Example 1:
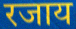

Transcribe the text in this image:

रजाय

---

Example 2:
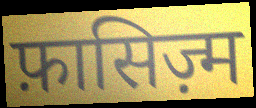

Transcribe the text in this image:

फ़ासिज़्म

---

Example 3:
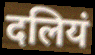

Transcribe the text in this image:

दलियं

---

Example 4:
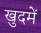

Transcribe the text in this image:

खुदमें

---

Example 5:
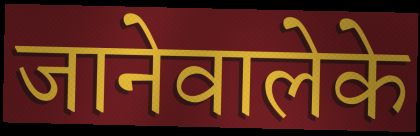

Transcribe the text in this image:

जानेवालेके